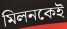
মিলনকেই